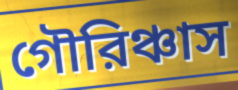
গৌরিঞ্চাস